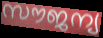
സൗജന്യ